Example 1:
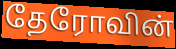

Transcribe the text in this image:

தேரோவின்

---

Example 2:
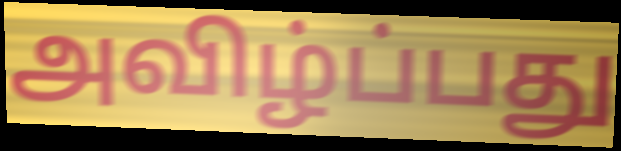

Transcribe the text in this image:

அவிழ்ப்பது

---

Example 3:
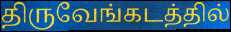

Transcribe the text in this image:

திருவேங்கடத்தில்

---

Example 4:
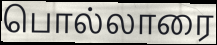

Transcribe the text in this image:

பொல்லாரை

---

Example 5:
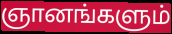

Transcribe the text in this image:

ஞானங்களும்